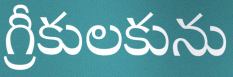
గ్రీకులకును